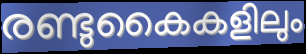
രണ്ടുകൈകളിലും